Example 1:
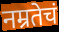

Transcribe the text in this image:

नम्रतेचं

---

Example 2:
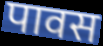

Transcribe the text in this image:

पावस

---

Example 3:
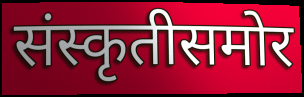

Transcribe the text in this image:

संस्कृतीसमोर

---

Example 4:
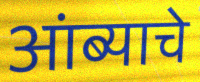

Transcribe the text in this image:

आंब्याचे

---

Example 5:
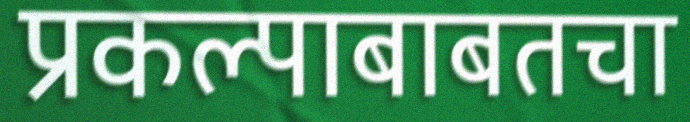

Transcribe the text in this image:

प्रकल्पाबाबतचा